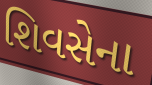
શિવસેના